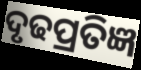
ଦୃଢପ୍ରତିଜ୍ଞ